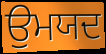
ਉਮਯਦ